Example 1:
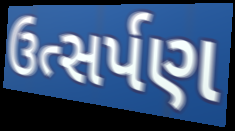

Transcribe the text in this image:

ઉત્સર્પણ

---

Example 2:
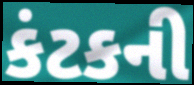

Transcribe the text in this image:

કંટકની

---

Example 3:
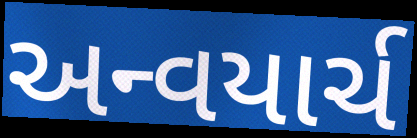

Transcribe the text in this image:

અન્વયાર્ચ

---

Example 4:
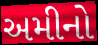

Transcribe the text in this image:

અમીનો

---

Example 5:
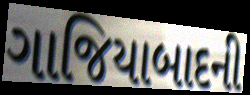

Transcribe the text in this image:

ગાજિયાબાદની